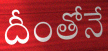
దీంతోనే